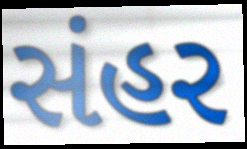
સંહર